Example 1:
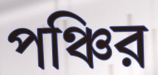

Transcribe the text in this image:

পঞ্চির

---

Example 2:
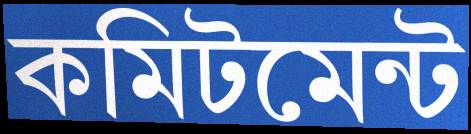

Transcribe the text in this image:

কমিটমেন্ট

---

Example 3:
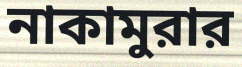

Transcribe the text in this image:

নাকামুরার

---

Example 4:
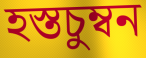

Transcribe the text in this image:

হস্তচুম্বন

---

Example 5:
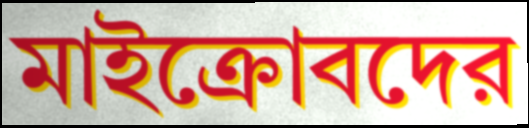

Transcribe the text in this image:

মাইক্রোবদের